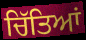
ਚਿੱਤਿਆਂ